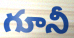
గూనీ